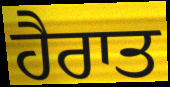
ਹੈਰਾਤ